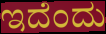
ಇದೆಂದು